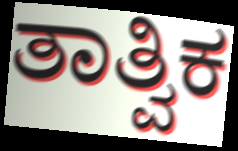
ತಾತ್ವಿಕ